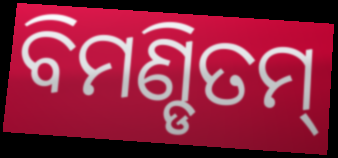
ବିମଣ୍ଡିତମ୍